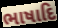
ભાષાદિ